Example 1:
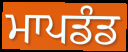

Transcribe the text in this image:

ਮਾਪਡੰਡ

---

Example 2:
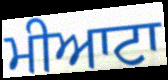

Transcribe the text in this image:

ਮੀਆਟਾ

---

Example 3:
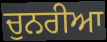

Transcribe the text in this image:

ਚੁਨਰੀਆ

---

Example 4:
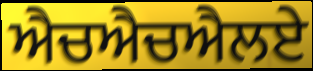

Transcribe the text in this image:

ਐਚਐਚਐਲਏ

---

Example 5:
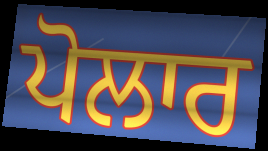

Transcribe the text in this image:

ਪੋਲਾਰ